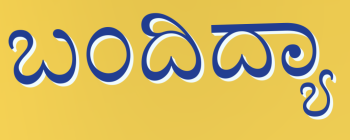
ಬಂದಿದ್ಯಾ